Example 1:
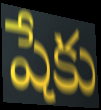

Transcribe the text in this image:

షేకు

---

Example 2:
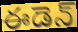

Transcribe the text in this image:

ఈడెన్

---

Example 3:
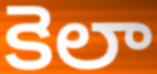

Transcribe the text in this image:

కెలా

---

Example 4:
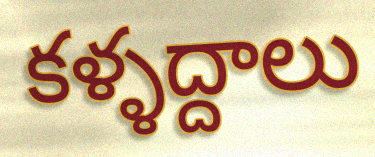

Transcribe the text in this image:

కళ్ళద్దాలు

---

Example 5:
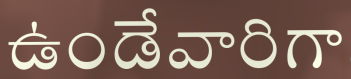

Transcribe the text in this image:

ఉండేవారిగా